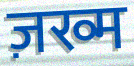
ज़ख्म